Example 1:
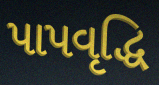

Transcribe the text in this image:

પાપવૃદ્ધિ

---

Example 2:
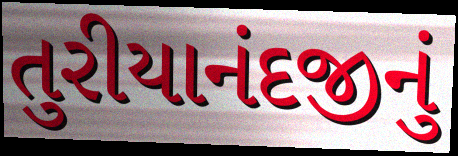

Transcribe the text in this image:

તુરીયાનંદજીનું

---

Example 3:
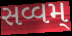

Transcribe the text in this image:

સવ્વમ્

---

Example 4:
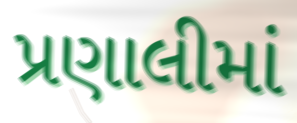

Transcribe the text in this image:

પ્રણાલીમાં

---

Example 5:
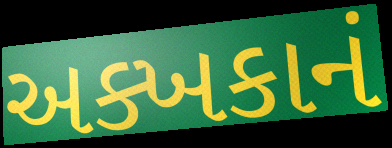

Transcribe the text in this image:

અક્ખકાનં